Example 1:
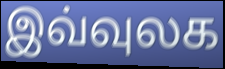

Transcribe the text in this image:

இவ்வுலக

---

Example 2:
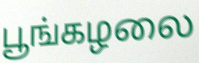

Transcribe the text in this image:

பூங்கழலை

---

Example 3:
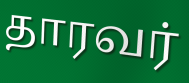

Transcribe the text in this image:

தாரவர்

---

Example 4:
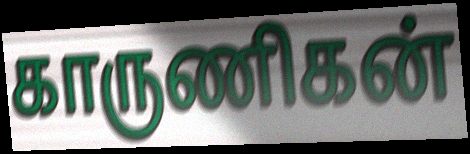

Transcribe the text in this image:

காருணிகன்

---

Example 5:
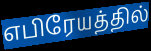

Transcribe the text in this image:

எபிரேயத்தில்